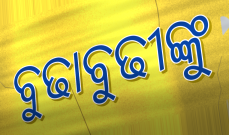
ବୁଢାବୁଢୀଙ୍କୁ